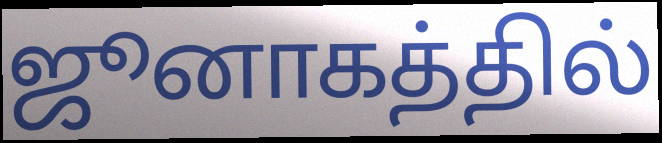
ஜூனாகத்தில்